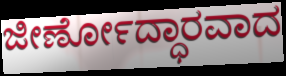
ಜೀರ್ಣೋದ್ಧಾರವಾದ